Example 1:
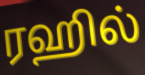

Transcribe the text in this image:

ரஹில்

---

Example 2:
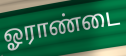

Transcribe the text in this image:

ஓராண்டை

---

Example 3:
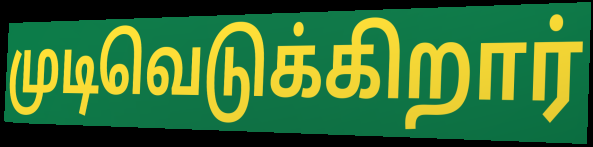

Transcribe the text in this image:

முடிவெடுக்கிறார்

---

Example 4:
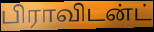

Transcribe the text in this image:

பிராவிடன்ட்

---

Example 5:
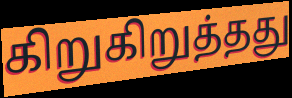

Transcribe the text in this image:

கிறுகிறுத்தது